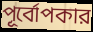
পূর্বোপকার